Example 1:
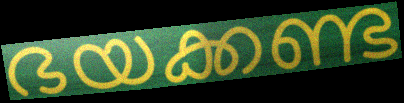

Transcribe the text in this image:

ഭയക്കണ്ട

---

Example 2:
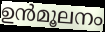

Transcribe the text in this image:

ഉൻമൂലനം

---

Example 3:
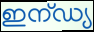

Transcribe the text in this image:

ഇന്ഡ്യ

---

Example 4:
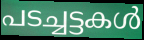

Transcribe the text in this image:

പടച്ചട്ടകൾ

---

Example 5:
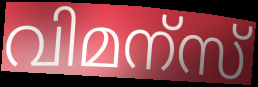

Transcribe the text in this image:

വിമന്സ്